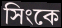
সিংকে